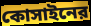
কোসাইনের